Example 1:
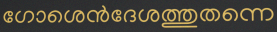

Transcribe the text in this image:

ഗോശെൻദേശത്തുതന്നെ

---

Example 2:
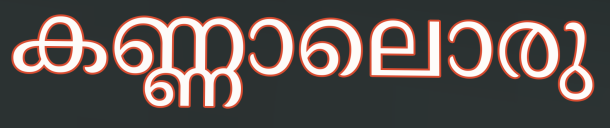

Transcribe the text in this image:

കണ്ണാലൊരു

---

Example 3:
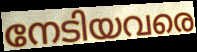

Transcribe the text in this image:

നേടിയവരെ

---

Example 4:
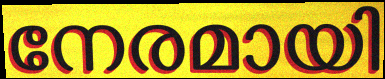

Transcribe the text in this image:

നേരമായി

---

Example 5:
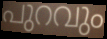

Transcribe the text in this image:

പുറവും